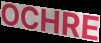
OCHRE